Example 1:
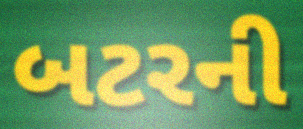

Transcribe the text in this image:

બટરની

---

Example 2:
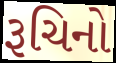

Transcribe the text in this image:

રૂચિનો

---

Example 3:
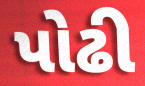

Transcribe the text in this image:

પોઢી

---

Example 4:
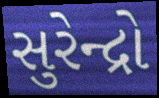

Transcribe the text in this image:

સુરેન્દ્રો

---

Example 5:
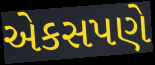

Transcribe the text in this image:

એકસપણે